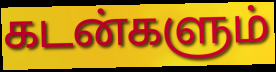
கடன்களும்